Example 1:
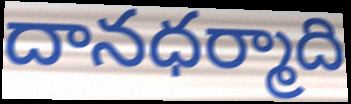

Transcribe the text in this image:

దానధర్మాది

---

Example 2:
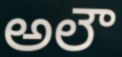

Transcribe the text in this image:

అలౌ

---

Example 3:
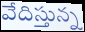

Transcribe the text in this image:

వేదిస్తున్న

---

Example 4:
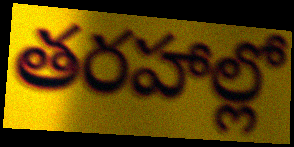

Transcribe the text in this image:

తరహాల్లో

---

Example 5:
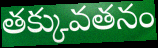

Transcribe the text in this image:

తక్కువతనం